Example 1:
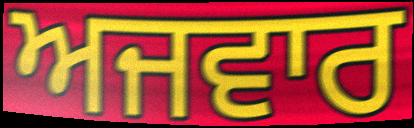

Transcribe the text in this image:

ਅਜਵਾਰ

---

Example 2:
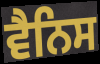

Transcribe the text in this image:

ਵੈਨਿਸ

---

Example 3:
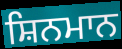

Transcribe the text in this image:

ਸ਼ਿਨਮਾਨ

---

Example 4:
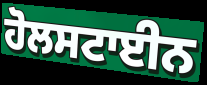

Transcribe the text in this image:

ਹੋਲਸਟਾਈਨ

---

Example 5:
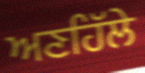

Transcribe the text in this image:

ਅਣਹਿੱਲੇ